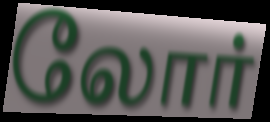
லோர்